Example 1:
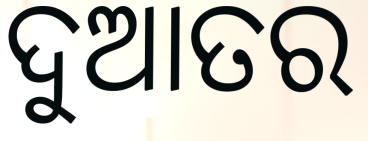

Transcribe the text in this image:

ଦୁଆତର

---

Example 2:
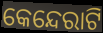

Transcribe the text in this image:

କେନ୍ଦେରାଟି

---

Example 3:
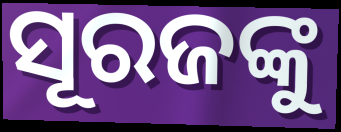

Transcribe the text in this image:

ସୂରଜଙ୍କୁ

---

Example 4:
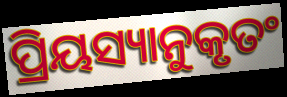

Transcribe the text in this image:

ପ୍ରିୟସ୍ୟାନୁକୃତଂ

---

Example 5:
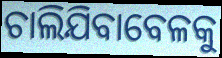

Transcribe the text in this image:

ଚାଲିଯିବାବେଳକୁ